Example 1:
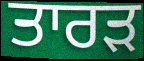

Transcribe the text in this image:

ਤਾਰੜ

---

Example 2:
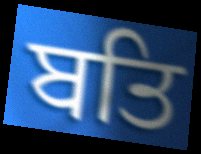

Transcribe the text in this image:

ਬਤਿ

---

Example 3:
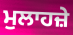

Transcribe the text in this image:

ਮੁਲਾਹਜ਼ੇ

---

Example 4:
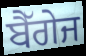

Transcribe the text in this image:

ਬੈੱਗੇਜ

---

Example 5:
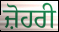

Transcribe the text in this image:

ਜ਼ੋਹਰੀ